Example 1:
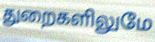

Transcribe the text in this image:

துறைகளிலுமே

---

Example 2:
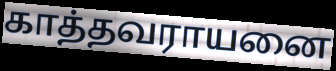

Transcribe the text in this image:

காத்தவராயனை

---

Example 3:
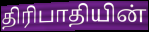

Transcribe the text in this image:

திரிபாதியின்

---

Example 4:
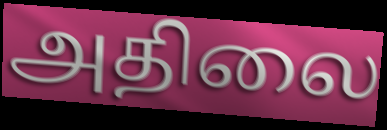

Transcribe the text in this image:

அதிலை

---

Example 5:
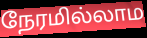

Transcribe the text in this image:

நேரமில்லாம